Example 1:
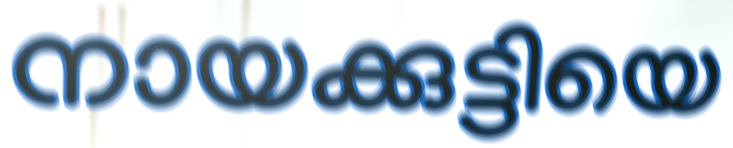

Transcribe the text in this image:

നായക്കുട്ടിയെ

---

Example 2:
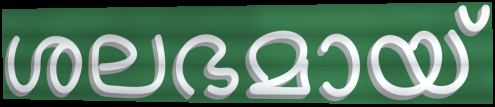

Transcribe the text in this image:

ശലഭമായ്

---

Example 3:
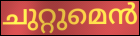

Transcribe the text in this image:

ചുറ്റുമെൻ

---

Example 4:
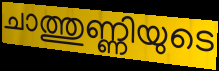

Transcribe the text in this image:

ചാത്തുണ്ണിയുടെ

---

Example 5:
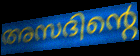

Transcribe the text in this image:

അസദിന്റെ